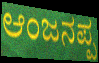
ಆಂಜನಪ್ಪ